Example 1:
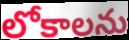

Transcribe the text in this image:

లోకాలను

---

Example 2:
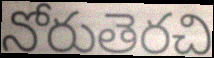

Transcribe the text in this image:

నోరుతెరచి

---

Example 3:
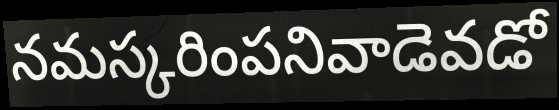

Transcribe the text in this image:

నమస్కరింపనివాడెవడో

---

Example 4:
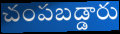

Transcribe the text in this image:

చంపబడ్డారు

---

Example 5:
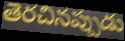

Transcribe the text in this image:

తెరచినప్పుడు